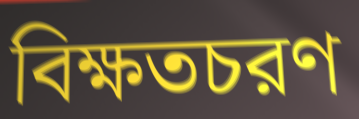
বিক্ষতচরণ